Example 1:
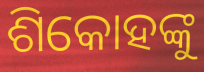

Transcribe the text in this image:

ଶିକୋହଙ୍କୁ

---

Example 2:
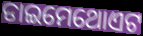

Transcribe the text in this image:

ଡାଇମେଥୋଏଟ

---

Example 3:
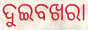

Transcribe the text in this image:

ଦୁଇବଖରା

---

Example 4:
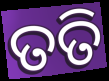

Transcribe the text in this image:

ତତି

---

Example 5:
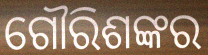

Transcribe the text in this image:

ଗୌରିଶଙ୍କର